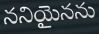
ననియైనను